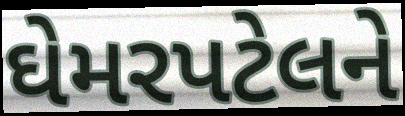
ઘેમરપટેલને